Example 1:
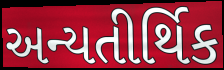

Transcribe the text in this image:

અન્યતીર્થિક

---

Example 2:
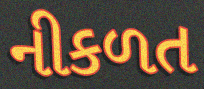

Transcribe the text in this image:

નીકળત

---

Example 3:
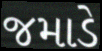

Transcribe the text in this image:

જમાડે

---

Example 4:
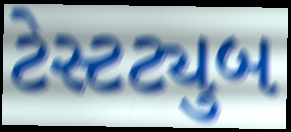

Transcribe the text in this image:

ટેસ્ટટ્યુબ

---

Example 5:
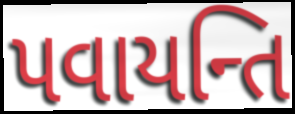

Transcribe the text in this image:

પવાયન્તિ